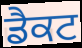
ਡੈਕਟ